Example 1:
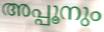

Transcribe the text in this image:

അപ്പൂനും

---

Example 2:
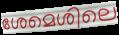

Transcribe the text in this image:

ശേമെശിലെ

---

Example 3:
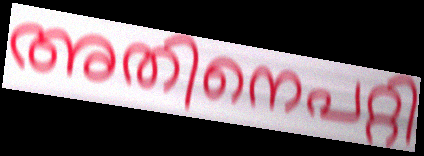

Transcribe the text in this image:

അതിനെപറ്റി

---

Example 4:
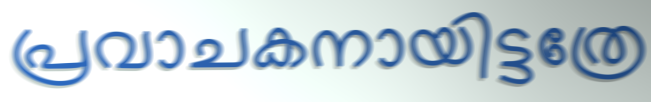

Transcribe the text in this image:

പ്രവാചകനായിട്ടത്രേ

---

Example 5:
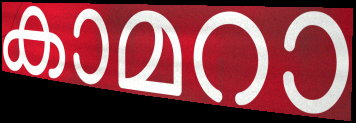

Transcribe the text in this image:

കാമറാ